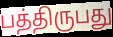
பத்திருபது